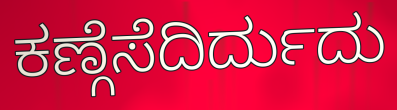
ಕಣ್ಗೆಸೆದಿರ್ದುದು